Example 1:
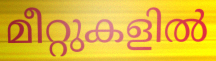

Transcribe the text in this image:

മീറ്റുകളിൽ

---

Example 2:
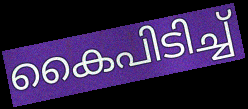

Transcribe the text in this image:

കൈപിടിച്ച്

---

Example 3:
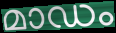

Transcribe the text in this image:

മാഡം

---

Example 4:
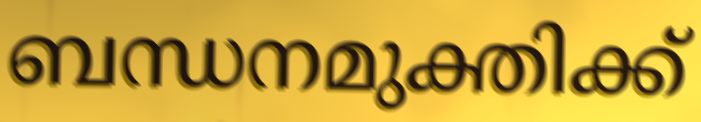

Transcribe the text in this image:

ബന്ധനമുക്തിക്ക്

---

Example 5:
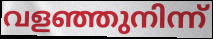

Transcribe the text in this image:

വളഞ്ഞുനിന്ന്